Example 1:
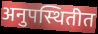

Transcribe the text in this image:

अनुपस्थितीत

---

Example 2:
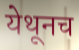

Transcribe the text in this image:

येथूनच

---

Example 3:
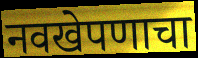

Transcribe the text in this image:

नवखेपणाचा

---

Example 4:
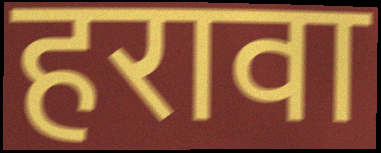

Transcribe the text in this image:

हरावा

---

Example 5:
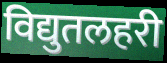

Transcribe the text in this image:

विद्युतलहरी